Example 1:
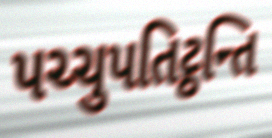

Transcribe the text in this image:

પચ્ચુપતિટ્ઠન્તિ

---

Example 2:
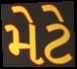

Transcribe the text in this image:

મેટે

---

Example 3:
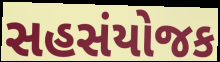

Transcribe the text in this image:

સહસંયોજક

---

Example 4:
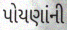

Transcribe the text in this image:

પોયણાંની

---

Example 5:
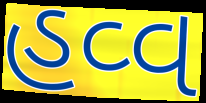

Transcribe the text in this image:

હવ્વ